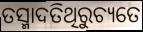
ତସ୍ମାଦତିଥିରୁଚ୍ୟତେ